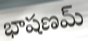
భాషణమ్